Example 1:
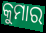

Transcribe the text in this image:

କୁମାର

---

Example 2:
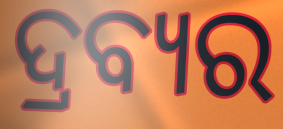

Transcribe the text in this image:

ଦ୍ରବ୍ୟର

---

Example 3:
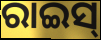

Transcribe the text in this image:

ରାଇସ୍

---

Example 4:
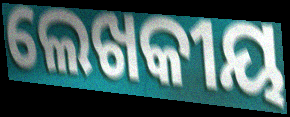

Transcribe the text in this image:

ଲେଖକୀୟ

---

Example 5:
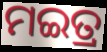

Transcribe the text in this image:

ମଇତ୍ର